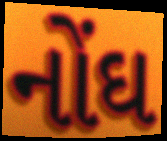
નોંઘ